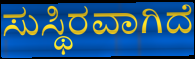
ಸುಸ್ಥಿರವಾಗಿದೆ